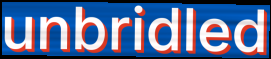
unbridled